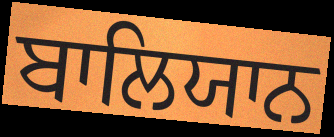
ਬਾਲਿਯਾਨ